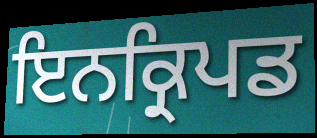
ਇਨਕ੍ਰਿਪਡ